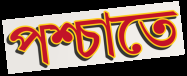
পশ্চাতে